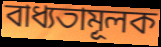
বাধ্যতামূলক